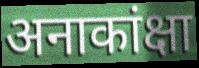
अनाकांक्षा